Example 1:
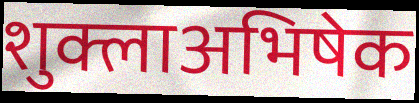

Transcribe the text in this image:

शुक्लाअभिषेक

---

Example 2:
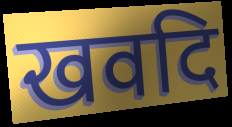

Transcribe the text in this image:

खवदि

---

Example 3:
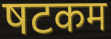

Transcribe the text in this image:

षटकम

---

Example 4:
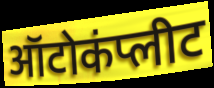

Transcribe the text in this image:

ऑटोकंप्लीट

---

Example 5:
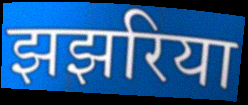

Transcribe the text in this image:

झझरिया